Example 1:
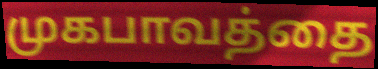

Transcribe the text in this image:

முகபாவத்தை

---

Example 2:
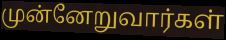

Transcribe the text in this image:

முன்னேறுவார்கள்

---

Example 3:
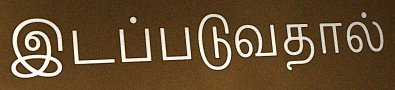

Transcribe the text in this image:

இடப்படுவதால்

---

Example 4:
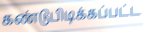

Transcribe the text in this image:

கண்டுபிடிக்கப்பட்ட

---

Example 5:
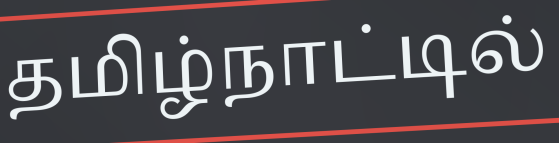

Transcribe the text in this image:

தமிழ்நாட்டில்